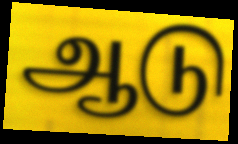
ஆடு